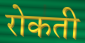
रोकती